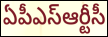
ఏపీఎస్ఆర్టీసీ